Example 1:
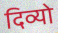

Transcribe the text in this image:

दिव्यो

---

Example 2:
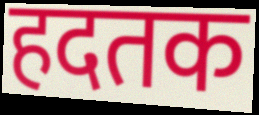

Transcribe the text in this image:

हदतक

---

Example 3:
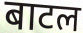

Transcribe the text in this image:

बाटल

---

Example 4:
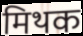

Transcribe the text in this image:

मिथक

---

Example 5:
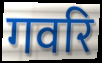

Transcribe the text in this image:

गवरि